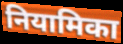
नियामिका